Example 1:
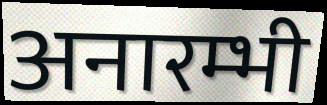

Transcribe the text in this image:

अनारम्भी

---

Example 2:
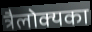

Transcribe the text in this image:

त्रैलोक्यका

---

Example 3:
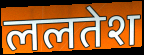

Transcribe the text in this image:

ललतेश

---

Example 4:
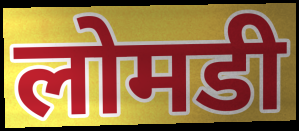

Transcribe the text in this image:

लोमडी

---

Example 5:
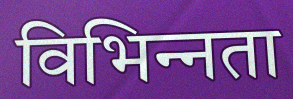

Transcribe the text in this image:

विभिन्‍नता